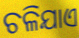
ଚଳିଯାଏ